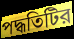
পদ্ধতিটির